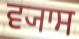
ਵ੍ਯਾਸ